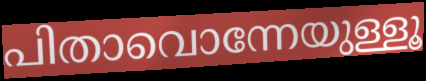
പിതാവൊന്നേയുള്ളൂ